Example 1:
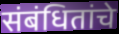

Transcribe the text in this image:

संबंधितांचे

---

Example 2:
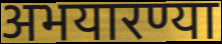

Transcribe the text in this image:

अभयारण्या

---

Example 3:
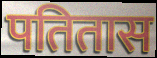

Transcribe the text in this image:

पतितास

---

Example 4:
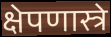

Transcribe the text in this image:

क्षेपणास्त्रे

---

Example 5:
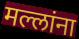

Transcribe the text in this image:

मल्लांना